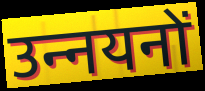
उन्नयनों